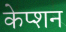
केप्शन